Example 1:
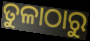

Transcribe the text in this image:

ତୁଳାଠାରୁ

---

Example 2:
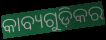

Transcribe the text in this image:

କାବ୍ୟଗୁଡ଼ିକର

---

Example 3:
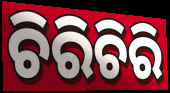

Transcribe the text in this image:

ଚିରିଚିରି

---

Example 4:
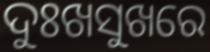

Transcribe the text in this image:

ଦୁଃଖସୁଖରେ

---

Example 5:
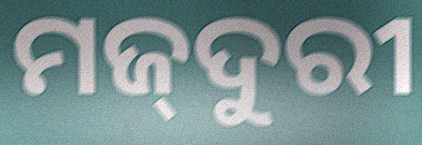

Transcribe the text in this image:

ମଜ୍‌ଦୁରୀ